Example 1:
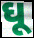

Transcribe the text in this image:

ઘૂ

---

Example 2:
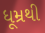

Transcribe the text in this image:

ધૂમ્રથી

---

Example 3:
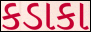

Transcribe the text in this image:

કડાકા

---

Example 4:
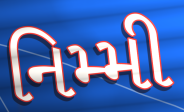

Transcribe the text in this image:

નિમ્મી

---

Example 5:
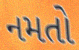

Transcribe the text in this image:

નમતો